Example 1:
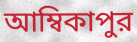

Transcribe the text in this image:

আম্বিকাপুর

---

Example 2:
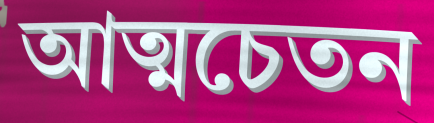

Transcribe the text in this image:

আত্মচেতন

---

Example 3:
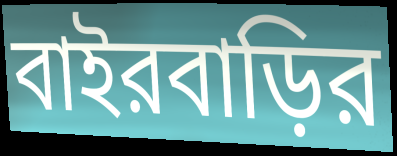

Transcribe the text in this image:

বাইরবাড়ির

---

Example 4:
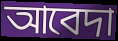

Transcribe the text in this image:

আবেদা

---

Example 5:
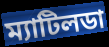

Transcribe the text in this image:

ম্যাটিলডা